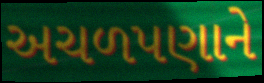
અચળપણાને